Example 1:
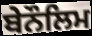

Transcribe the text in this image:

ਬੇਨੌਲਿਮ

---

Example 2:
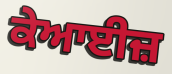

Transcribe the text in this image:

ਕੇਆਈਜ਼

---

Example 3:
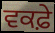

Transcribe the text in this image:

ਵਕਫ਼ੇ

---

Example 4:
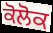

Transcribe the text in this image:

ਕੋਲੋਕ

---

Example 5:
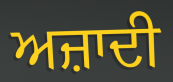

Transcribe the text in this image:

ਅਜ਼ਾਦੀ